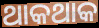
ଥାକଥାକ